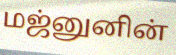
மஜ்னுனின்